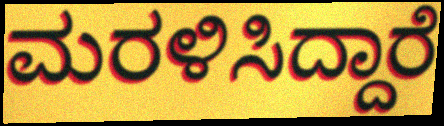
ಮರಳಿಸಿದ್ದಾರೆ